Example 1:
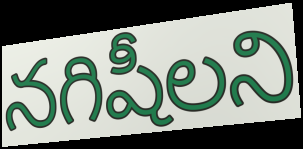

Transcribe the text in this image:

నగిషీలని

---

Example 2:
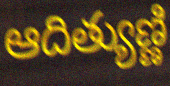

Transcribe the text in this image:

ఆదిత్యుణ్ణి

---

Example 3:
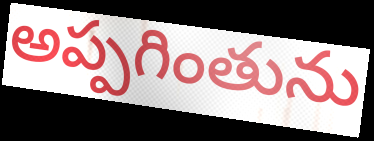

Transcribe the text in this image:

అప్పగింతును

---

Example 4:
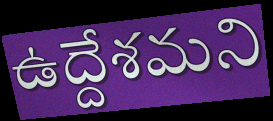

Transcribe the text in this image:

ఉద్దేశమని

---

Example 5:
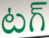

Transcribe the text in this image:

టగ్